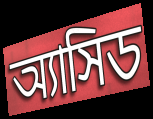
অ্যাসিড